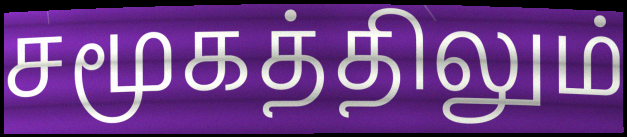
சமூகத்திலும்